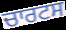
ਚਾਰਟਸ